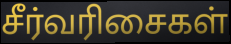
சீர்வரிசைகள்